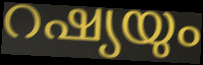
റഷ്യയും